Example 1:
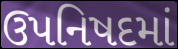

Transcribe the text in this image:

ઉપનિષદમાં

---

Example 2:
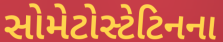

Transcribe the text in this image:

સોમેટોસ્ટેટિનના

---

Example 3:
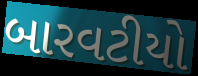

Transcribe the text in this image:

બારવટીયો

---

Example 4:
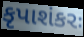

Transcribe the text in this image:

કૃપાશંકરઃ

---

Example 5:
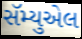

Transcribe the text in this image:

સૅમ્યુએલ